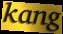
kang